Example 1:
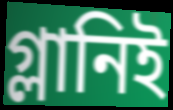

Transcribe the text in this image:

গ্লানিই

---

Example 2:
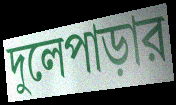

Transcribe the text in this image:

দুলেপাড়ার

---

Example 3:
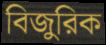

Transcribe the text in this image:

বিজুরিক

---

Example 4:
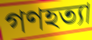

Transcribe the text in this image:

গণহত্যা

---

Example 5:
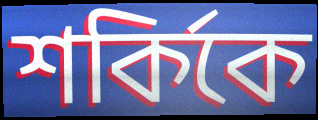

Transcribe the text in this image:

শর্কিকে